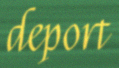
deport